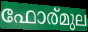
ഫോര്മുല